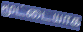
மூட்டையாக